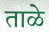
ताळे